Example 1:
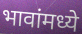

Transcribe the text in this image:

भावांमध्ये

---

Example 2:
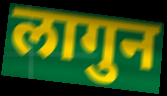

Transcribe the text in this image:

लागुन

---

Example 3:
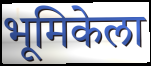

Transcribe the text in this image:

भूमिकेला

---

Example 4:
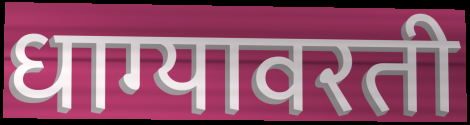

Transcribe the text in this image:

धाग्यावरती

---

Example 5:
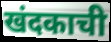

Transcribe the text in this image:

खंदकाची